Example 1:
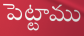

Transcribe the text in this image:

పెట్టాము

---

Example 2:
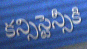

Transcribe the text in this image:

కన్సిస్టెన్సీకి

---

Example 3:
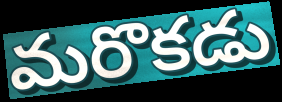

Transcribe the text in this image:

మరొకడు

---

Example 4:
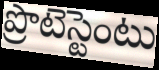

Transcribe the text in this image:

ప్రొటెస్టెంటు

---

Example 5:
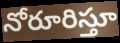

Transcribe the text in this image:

నోరూరిస్తూ